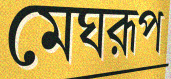
মেঘরূপ